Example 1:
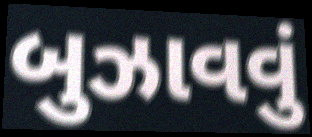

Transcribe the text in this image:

બુઝાવવું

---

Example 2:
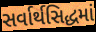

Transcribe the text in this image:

સર્વાર્થસિદ્ધમાં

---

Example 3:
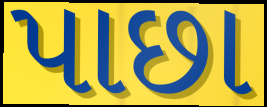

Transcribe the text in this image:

પાછા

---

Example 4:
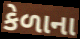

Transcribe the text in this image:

કેળાના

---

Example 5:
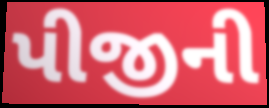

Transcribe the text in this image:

પીજીની